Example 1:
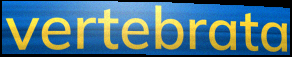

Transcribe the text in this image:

vertebrata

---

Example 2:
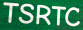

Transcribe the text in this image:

TSRTC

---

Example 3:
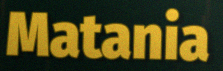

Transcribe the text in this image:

Matania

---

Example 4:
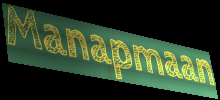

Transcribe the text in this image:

Manapmaan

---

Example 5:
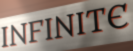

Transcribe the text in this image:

INFINITE